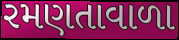
રમણતાવાળા